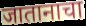
जातानाचा